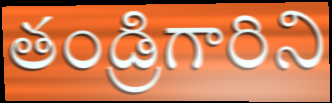
తండ్రిగారిని